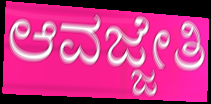
ಆವಜ್ಜೇತಿ